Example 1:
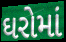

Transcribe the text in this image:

ઘરોમાં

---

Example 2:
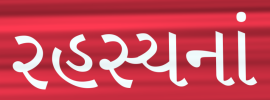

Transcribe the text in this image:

રહસ્યનાં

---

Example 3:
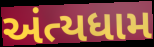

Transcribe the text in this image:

અંત્યધામ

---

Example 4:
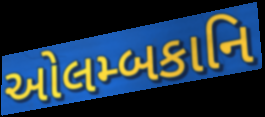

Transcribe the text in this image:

ઓલમ્બકાનિ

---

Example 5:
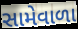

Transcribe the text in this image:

સામેવાળા